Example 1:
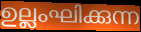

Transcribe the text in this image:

ഉല്ലംഘിക്കുന്ന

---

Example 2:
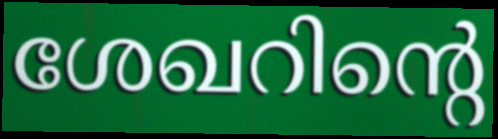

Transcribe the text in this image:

ശേഖറിന്റെ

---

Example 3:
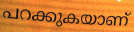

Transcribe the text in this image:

പറക്കുകയാണ്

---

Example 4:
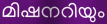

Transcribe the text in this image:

മിഷനറിയും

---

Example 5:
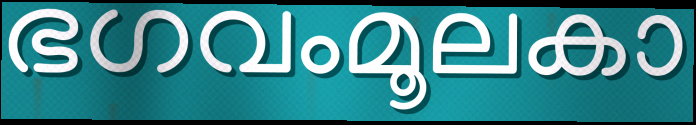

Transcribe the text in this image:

ഭഗവംമൂലകാ